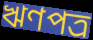
ঋণপত্র